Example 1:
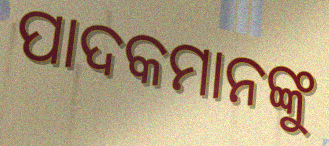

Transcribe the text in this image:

ପାଦକମାନଙ୍କୁ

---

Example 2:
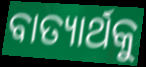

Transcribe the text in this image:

ବାତ୍ୟାର୍ଥକୁ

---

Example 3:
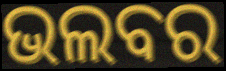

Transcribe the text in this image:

ଭଲବର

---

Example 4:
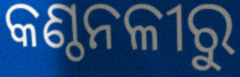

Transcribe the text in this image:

କଣ୍ଠନଳୀରୁ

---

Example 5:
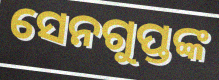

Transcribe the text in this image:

ସେନଗୁପ୍ତଙ୍କ